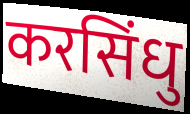
करसिंधु